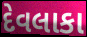
દેવલાકા